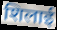
शिलाई